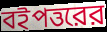
বইপত্তরের